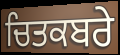
ਚਿਤਕਬਰੇ